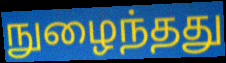
நுழைந்தது